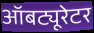
ऑबट्यूरेटर